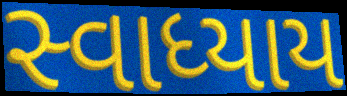
સ્વાધ્યાય